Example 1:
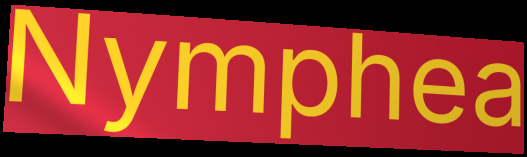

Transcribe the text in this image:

Nymphea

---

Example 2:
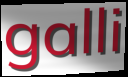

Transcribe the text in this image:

galli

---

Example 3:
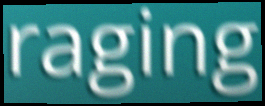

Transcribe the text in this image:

raging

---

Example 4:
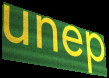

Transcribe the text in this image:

unep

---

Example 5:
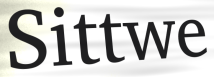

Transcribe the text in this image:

Sittwe